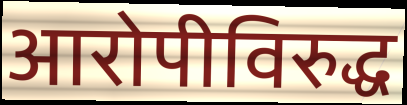
आरोपीविरुद्ध